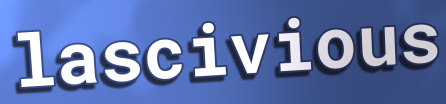
lascivious